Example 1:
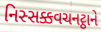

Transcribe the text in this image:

નિસ્સક્કવચનટ્ઠાને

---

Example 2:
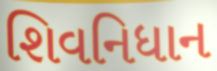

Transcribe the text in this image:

શિવનિધાન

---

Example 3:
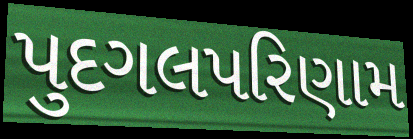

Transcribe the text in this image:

પુદગલપરિણામ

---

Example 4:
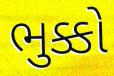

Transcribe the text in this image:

ભુક્કો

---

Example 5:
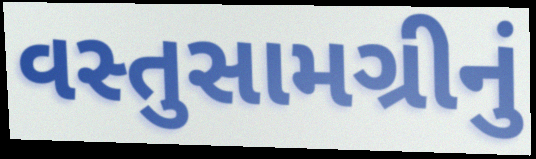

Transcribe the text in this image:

વસ્તુસામગ્રીનું